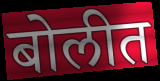
बोलीत